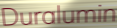
Duralumin